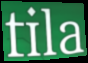
tila